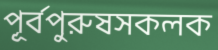
পূৰ্বপুৰুষসকলক